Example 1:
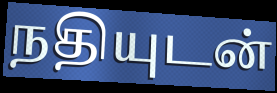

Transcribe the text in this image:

நதியுடன்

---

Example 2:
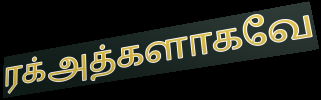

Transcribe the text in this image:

ரக்அத்களாகவே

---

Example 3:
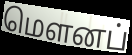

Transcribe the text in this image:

மெளனப்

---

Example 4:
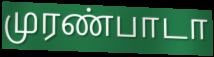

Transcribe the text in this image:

முரண்பாடா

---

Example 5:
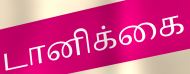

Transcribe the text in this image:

டானிக்கை